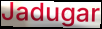
Jadugar